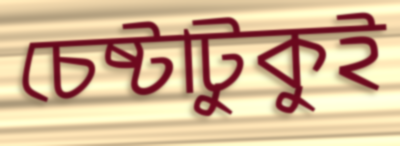
চেষ্টাটুকুই